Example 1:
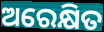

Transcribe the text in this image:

ଅରେକ୍ଷିତ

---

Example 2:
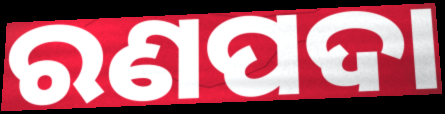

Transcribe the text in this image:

ରଣପଦା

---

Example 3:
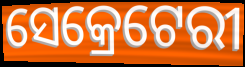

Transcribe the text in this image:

ସେକ୍ରେଟେରୀ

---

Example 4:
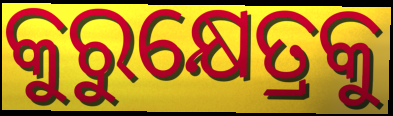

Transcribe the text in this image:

କୁରୁକ୍ଷେତ୍ରକୁ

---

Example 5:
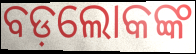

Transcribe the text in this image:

ବଡ଼ଲୋକଙ୍କ